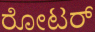
ರೋಟರ್